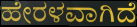
ಹೇರಳವಾಗಿದೆ